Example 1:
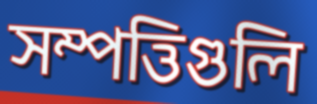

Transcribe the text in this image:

সম্পত্তিগুলি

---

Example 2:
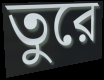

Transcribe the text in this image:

তুরে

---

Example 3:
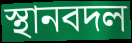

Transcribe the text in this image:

স্থানবদল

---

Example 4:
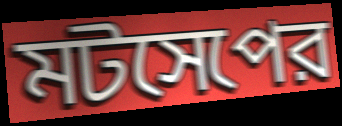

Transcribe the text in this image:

মটসেপের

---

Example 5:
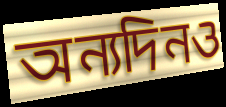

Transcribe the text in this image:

অন্যদিনও